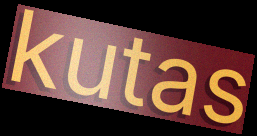
kutas